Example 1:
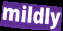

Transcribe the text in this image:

mildly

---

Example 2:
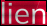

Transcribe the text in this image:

lien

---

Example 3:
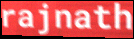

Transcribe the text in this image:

rajnath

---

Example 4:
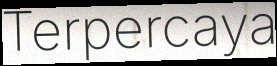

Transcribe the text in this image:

Terpercaya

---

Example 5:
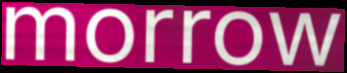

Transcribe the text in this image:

morrow